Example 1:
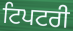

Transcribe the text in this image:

ਟਿਪਟਰੀ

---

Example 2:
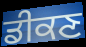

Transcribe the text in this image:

ਡੀਕਣ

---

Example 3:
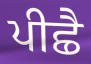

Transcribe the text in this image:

ਪੀਛੈ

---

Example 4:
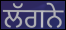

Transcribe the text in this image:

ਲੱਗਨੇ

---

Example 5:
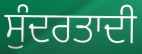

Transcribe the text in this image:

ਸੁੰਦਰਤਾਦੀ